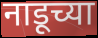
नाडूच्या